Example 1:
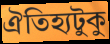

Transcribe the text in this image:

ঐতিহ্যটুকু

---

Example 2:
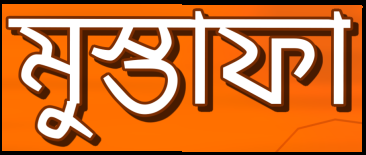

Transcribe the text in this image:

মুস্তাফা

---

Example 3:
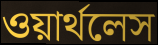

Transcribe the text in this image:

ওয়ার্থলেস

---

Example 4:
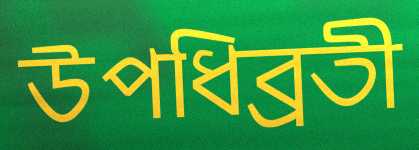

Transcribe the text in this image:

উপধিব্রতী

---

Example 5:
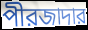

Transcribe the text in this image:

পীরজাদার